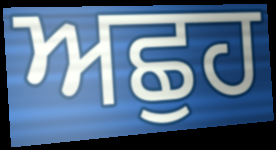
ਅਛੁਹ